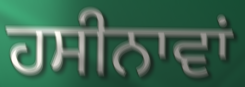
ਹਸੀਨਾਵਾਂ